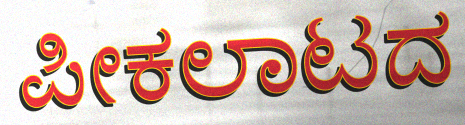
ಪೀಕಲಾಟದ